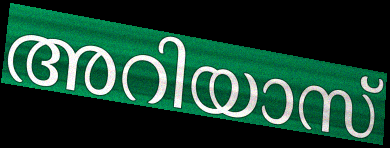
അറിയാസ്